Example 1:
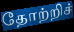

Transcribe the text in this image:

தோற்றிச்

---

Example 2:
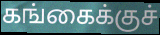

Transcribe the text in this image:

கங்கைக்குச்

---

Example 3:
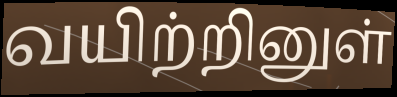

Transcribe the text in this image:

வயிற்றினுள்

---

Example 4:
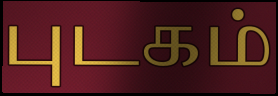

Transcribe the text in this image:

புடகம்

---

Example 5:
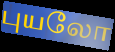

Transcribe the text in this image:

புயலோ